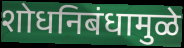
शोधनिबंधामुळे